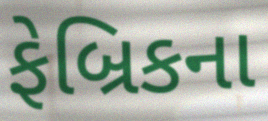
ફેબ્રિકના